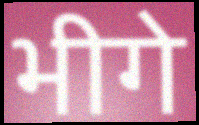
भीगे